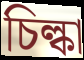
চিল্কা